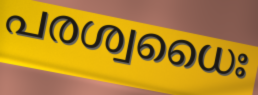
പരശ്വധൈഃ